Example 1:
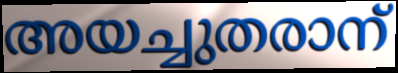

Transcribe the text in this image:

അയച്ചുതരാന്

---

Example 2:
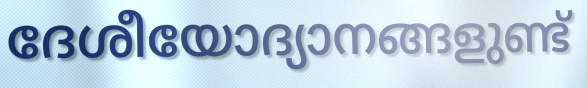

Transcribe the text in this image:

ദേശീയോദ്യാനങ്ങളുണ്ട്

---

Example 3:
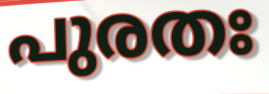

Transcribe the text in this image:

പുരതഃ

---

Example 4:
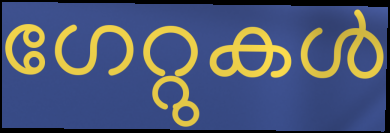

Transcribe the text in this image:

ഗേറ്റുകൾ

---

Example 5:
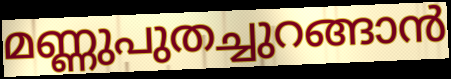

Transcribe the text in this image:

മണ്ണുപുതച്ചുറങ്ങാൻ